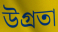
উগ্ৰতা